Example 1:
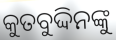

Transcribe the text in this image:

କୁତବୁଦ୍ଦିନଙ୍କୁ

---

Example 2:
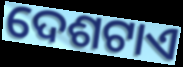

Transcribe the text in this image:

ଦେଶଟାଏ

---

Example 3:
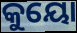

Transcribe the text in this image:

କୁୟୋ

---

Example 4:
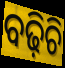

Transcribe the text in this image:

ବଢ଼ିଚି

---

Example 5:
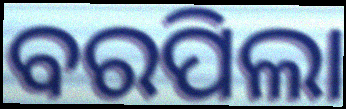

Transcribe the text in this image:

ବରପିଲା